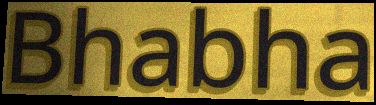
Bhabha